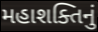
મહાશક્તિનું